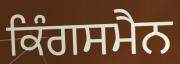
ਕਿੰਗਸਮੈਨ